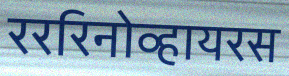
रररिनोव्हायरस